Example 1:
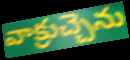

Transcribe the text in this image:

వాక్రుచ్చెను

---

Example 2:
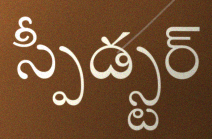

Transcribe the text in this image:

స్పీడ్స్టర్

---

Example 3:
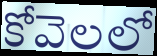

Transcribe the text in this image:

కోవెలలో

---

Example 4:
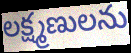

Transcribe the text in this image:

లక్ష్మణులను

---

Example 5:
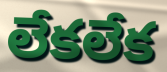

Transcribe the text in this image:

లేకలేక